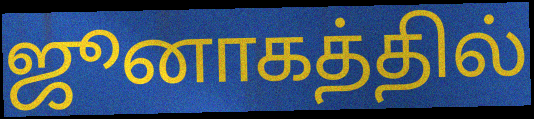
ஜூனாகத்தில்